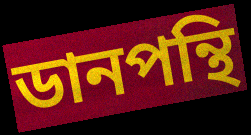
ডানপন্থি